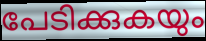
പേടിക്കുകയും